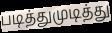
படித்துமுடித்து